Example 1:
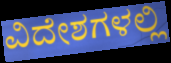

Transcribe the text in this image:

ವಿದೇಶಗಳಲ್ಲಿ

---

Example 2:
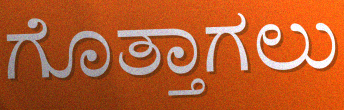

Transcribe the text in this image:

ಗೊತ್ತಾಗಲು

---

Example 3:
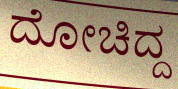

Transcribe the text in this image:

ದೋಚಿದ್ದ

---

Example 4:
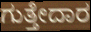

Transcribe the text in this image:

ಗುತ್ತೇದಾರ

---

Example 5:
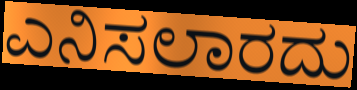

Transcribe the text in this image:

ಎನಿಸಲಾರದು